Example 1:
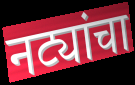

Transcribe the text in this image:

नट्यांचा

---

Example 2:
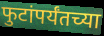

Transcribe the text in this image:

फुटांपर्यंतच्या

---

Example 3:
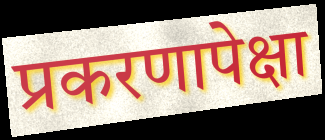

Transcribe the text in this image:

प्रकरणापेक्षा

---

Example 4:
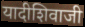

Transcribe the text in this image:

यादीशिवाजी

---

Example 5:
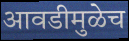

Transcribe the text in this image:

आवडीमुळेच